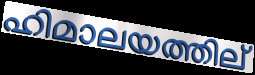
ഹിമാലയത്തില്